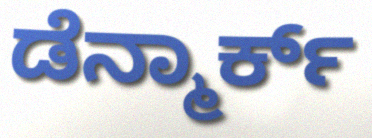
ಡೆನ್ಮಾರ್ಕ್